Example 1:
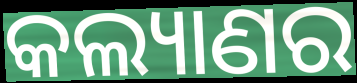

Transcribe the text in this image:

କଲ୍ୟାଣର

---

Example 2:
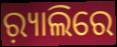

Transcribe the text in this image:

ର଼୍ୟାଲିରେ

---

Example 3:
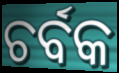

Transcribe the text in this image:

ଚର୍ବକ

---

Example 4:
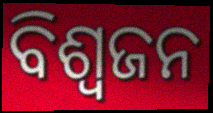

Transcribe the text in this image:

ବିଶ୍ଵଜନ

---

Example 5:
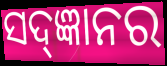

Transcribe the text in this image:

ସଦ୍‌ଜ୍ଞାନର